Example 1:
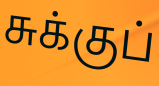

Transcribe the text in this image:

சுக்குப்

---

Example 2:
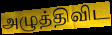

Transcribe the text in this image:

அழுத்திவிட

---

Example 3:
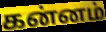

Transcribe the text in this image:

கன்னம்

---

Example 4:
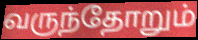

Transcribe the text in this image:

வருந்தோறும்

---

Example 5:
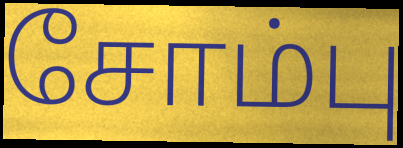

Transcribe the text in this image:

சோம்பு